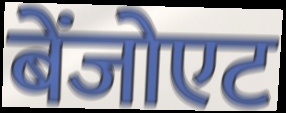
बेंजोएट